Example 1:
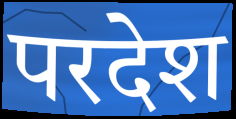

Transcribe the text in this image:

परदेश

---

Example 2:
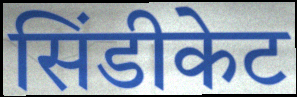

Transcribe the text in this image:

सिंडीकेट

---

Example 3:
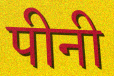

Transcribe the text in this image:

पीनी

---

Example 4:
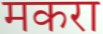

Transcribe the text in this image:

मकरा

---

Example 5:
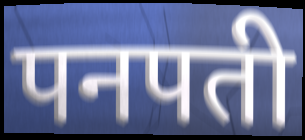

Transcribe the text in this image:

पनपती